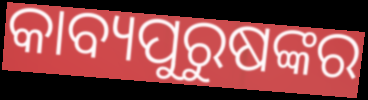
କାବ୍ୟପୁରୁଷଙ୍କର